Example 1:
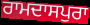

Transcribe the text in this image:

ਰਾਮਦਾਸਪੁਰਾ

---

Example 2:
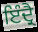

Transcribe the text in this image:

ਇੰਦ੍ਰੈ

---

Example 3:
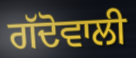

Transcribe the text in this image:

ਗੱਦੋਵਾਲੀ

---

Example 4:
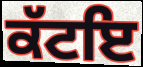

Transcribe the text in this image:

ਕੱਟਇ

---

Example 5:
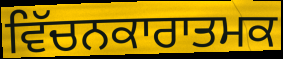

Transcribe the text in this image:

ਵਿੱਚਨਕਾਰਾਤਮਕ